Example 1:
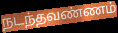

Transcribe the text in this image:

நடந்தவண்ணம்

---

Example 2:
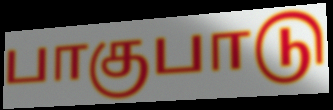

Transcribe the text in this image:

பாகுபாடு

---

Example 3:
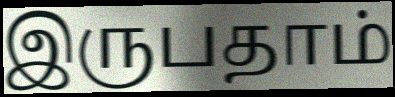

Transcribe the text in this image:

இருபதாம்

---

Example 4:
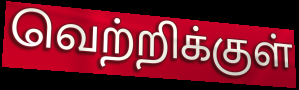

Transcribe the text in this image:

வெற்றிக்குள்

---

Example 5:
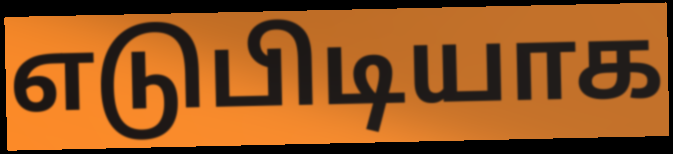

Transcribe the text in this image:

எடுபிடியாக